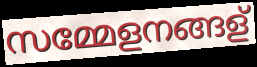
സമ്മേളനങ്ങള്